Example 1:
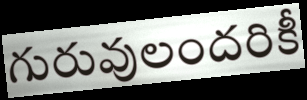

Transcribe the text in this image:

గురువులందరికీ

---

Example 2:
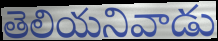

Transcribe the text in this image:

తెలియనివాడు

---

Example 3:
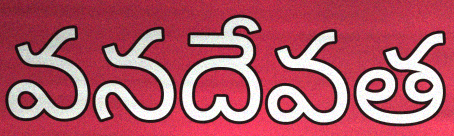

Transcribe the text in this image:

వనదేవత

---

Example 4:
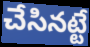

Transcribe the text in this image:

చేసినట్టే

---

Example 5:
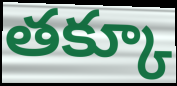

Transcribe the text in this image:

తక్కూ